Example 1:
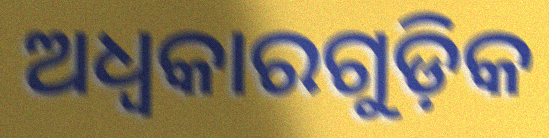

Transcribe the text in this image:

ଅଧ୍ବକାରଗୁଡ଼ିକ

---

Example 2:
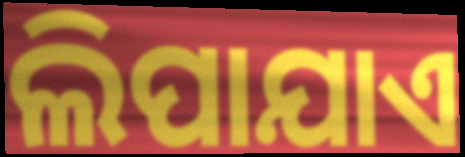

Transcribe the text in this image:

ଲିପାଯାଏ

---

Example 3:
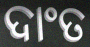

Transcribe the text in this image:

ଦାଂତ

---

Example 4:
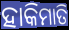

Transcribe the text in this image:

ହାକିମାତି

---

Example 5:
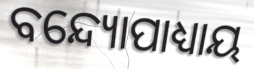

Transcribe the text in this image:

ବନ୍ଦ୍ୟୋପାଧ୍ୟାୟ